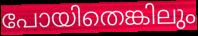
പോയിതെങ്കിലും